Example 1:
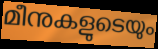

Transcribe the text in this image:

മീനുകളുടെയും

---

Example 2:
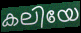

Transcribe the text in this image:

കലിയേ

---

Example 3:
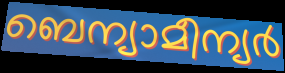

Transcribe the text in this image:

ബെന്യാമീന്യർ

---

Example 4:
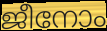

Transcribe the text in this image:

ജീനോം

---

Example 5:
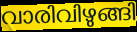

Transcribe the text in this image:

വാരിവിഴുങ്ങി